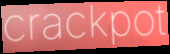
crackpot